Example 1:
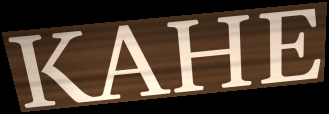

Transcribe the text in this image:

KAHE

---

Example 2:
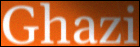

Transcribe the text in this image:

Ghazi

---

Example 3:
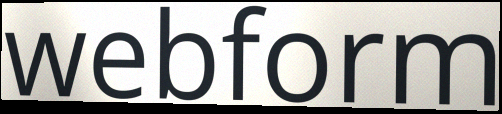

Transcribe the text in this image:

webform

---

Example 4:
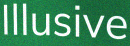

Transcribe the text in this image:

Illusive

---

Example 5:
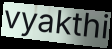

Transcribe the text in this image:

vyakthi